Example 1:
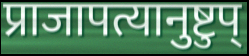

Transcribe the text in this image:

प्राजापत्यानुष्टुप्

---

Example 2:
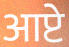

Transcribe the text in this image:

आप्टे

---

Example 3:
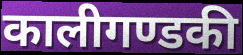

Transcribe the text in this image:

कालीगण्डकी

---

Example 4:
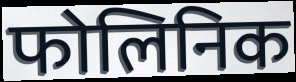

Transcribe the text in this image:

फोलिनिक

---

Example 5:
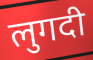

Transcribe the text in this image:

लुगदी